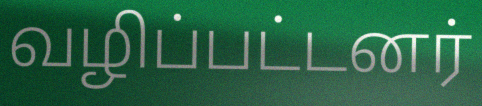
வழிப்பட்டனர்